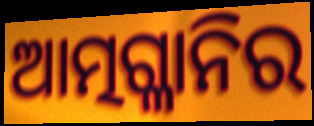
ଆତ୍ମଗ୍ଳାନିର